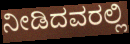
ನೀಡಿದವರಲ್ಲಿ